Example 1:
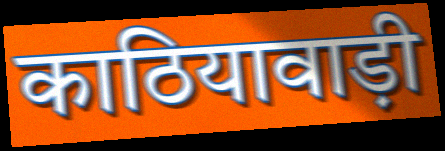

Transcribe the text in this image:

काठियावाड़ी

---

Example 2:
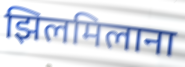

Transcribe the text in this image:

झिलमिलाना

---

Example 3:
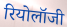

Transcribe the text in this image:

रियोलॉजी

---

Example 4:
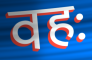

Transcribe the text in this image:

वहः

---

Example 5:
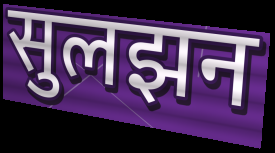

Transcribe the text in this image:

सुलझन